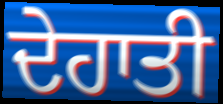
ਦੇਹਾਤੀ